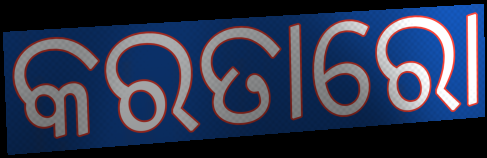
କରତାରୋ